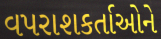
વપરાશકર્તાઓને